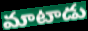
మాటాడు